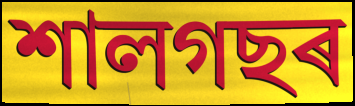
শালগছৰ